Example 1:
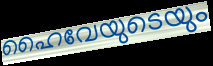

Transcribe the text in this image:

ഹൈവേയുടെയും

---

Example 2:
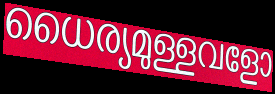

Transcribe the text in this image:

ധൈര്യമുള്ളവളോ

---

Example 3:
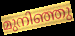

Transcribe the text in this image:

മുനിഞ്ഞു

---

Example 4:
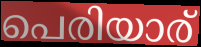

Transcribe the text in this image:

പെരിയാര്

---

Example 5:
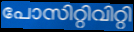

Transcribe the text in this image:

പോസിറ്റിവിറ്റി